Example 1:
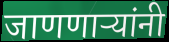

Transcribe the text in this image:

जाणणाऱ्यांनी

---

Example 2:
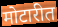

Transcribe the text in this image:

मोटारीत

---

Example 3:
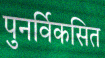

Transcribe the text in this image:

पुनर्विकसित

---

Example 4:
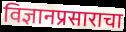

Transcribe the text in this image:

विज्ञानप्रसाराचा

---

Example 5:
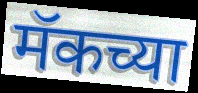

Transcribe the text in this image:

मॅकच्या